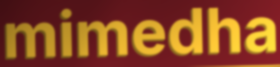
mimedha